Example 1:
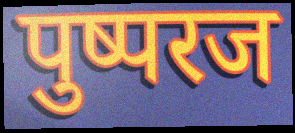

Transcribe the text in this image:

पुष्परज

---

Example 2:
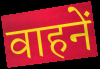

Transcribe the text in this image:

वाहनें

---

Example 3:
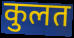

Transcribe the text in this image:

कुलत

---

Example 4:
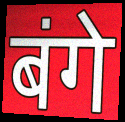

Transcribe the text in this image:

बंगे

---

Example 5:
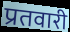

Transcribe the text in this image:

प्रतवारी